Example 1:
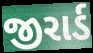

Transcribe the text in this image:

જીરાર્ડ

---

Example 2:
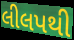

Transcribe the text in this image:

લીલપથી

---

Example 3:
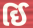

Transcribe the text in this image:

ઈિ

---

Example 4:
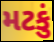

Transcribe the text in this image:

મટકું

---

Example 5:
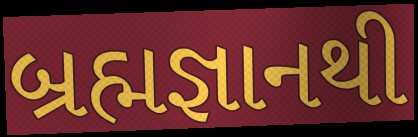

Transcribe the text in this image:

બ્રહ્મજ્ઞાનથી